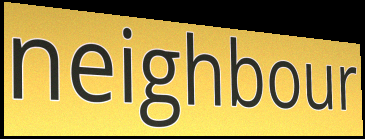
neighbour